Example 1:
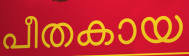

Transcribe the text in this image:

പീതകായ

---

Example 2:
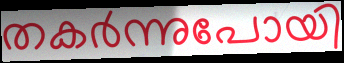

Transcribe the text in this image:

തകർന്നുപോയി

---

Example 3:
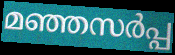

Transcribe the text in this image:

മഞ്ഞസർപ്പ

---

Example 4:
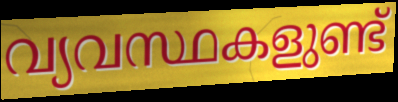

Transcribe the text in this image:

വ്യവസ്ഥകളുണ്ട്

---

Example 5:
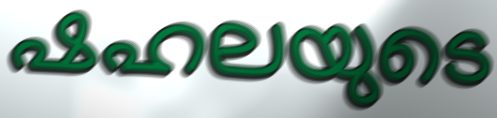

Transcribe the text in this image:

ഷഹലയുടെ